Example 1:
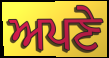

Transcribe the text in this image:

ਅਪਣੇ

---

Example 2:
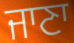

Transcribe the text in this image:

ਜਾਣਾ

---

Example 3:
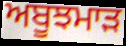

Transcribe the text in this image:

ਅਬੂਝਮਾੜ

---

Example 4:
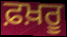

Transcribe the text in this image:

ਫ਼ਖ਼ਰੂ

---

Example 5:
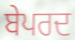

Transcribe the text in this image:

ਬੇਪਰਦ